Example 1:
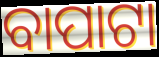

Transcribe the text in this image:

ବାପାଟା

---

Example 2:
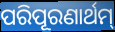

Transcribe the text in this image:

ପରିପୂରଣାର୍ଥମ୍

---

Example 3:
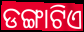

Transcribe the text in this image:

ଡଙ୍ଗାଟିଏ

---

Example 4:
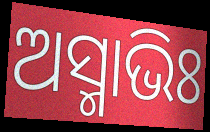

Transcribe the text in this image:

ଅସ୍ମାଭିଃ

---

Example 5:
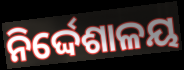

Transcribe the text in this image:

ନିର୍ଦ୍ଦେଶାଳୟ